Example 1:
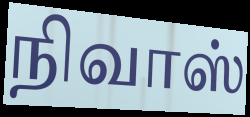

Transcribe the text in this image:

நிவாஸ்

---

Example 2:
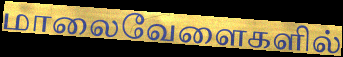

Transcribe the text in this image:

மாலைவேளைகளில்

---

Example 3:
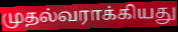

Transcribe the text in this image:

முதல்வராக்கியது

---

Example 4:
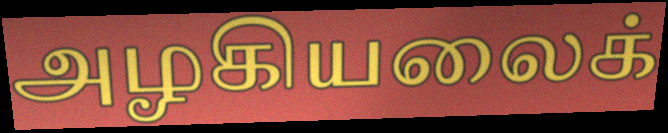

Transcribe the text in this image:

அழகியலைக்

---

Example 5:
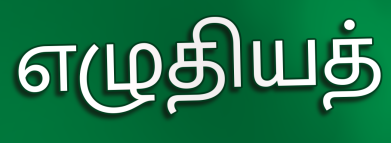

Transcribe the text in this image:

எழுதியத்